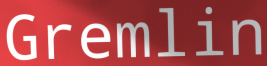
Gremlin